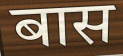
बास